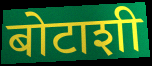
बोटाशी